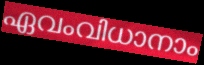
ഏവംവിധാനാം